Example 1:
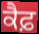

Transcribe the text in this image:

ਕੈਫ਼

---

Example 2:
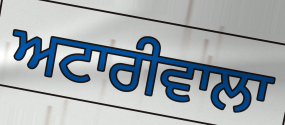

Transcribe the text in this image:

ਅਟਾਰੀਵਾਲਾ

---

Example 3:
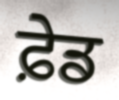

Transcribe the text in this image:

ਫ਼ੇਡ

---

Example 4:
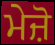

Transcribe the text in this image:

ਮੇਜ਼ੋ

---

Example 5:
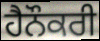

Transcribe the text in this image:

ਹੈਨੌਕਰੀ